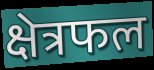
क्षेत्रफल